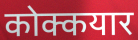
कोक्कयार